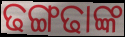
ଢଙ୍ଗଢାଙ୍କ